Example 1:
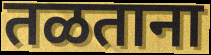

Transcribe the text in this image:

तळताना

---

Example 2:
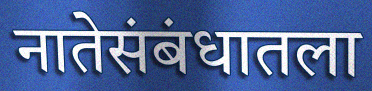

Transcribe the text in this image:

नातेसंबंधातला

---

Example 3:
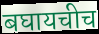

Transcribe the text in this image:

बघायचीच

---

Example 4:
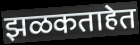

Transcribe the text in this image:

झळकताहेत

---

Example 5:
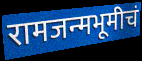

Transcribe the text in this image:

रामजन्मभूमीचं